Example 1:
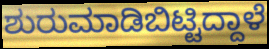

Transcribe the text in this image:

ಶುರುಮಾಡಿಬಿಟ್ಟಿದ್ದಾಳೆ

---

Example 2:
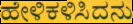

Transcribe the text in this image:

ಹೇಳಿಕಳಿಸಿದನು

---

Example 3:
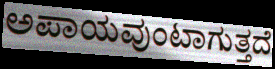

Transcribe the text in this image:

ಅಪಾಯವುಂಟಾಗುತ್ತದೆ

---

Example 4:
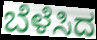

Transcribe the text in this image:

ಬೆಳೆಸಿದ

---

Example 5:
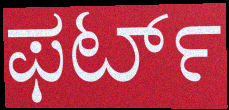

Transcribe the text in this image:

ಫರ್ಟ್